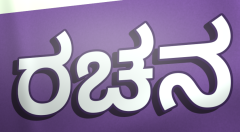
ರಚನ